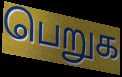
பெறுக